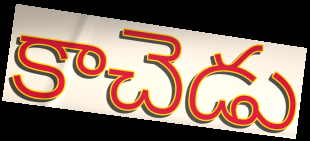
కాచెడు